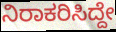
ನಿರಾಕರಿಸಿದ್ದೇ